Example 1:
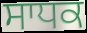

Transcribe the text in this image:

ਸਾਧਕ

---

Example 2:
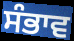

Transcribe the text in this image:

ਸੰਭਾਵ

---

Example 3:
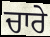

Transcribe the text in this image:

ਚਾਰੇ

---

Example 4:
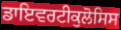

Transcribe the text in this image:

ਡਾਇਵਰਟੀਕੁਲੋਸਿਸ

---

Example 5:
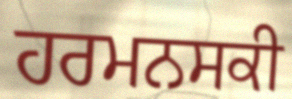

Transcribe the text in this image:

ਹਰਮਨਸਕੀ